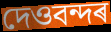
দেওবন্দৰ